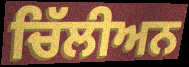
ਚਿੱਲੀਅਨ